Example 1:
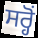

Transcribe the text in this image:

ਸਰ੍ਹੋਂ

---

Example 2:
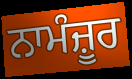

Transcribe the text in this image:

ਨਾਮੰਜ਼ੂਰ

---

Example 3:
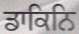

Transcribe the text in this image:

ਡਾਕਿਨਿ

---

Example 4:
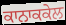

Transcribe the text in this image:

ਕਾਨਾਕਕੇਲ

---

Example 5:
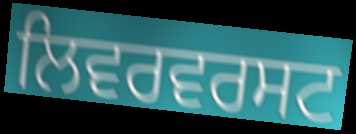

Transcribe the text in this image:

ਲਿਵਰਵਰਸਟ